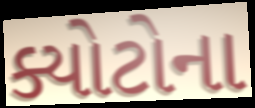
ક્યોટોના